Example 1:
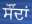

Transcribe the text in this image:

ਸੌਂਦਾਂ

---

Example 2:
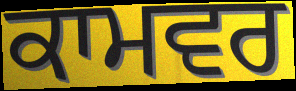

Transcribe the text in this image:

ਕਾਮਵਰ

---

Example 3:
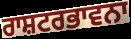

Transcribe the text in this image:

ਰਾਸ਼ਟਰਭਾਵਨਾ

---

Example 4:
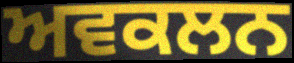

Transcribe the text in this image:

ਅਵਕਲਨ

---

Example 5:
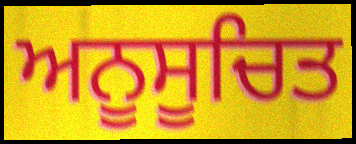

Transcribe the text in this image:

ਅਨੂਸੂਚਿਤ